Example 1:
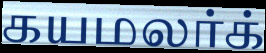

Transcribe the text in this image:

கயமலர்க்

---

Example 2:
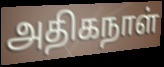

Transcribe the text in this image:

அதிகநாள்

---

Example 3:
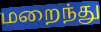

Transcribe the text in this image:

மறைந்து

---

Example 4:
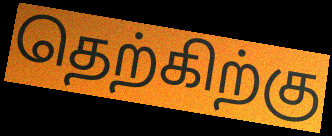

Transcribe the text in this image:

தெற்கிற்கு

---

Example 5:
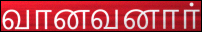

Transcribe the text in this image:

வானவனார்